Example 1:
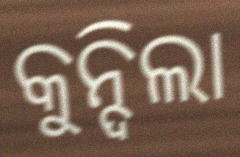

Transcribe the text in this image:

କୁନ୍ଦିଲା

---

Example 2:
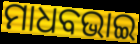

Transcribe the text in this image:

ମାଧବଭାଇ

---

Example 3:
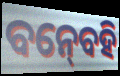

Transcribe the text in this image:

ବନ୍‍ବେହି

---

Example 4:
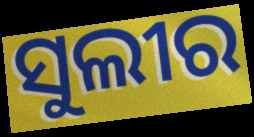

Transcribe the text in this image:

ସୁଲୀର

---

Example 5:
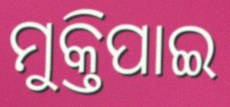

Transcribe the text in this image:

ମୁକ୍ତିପାଇ